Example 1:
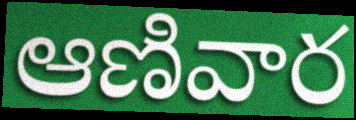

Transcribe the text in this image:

ఆణివార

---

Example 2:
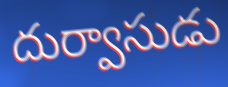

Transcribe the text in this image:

దుర్వాసుడు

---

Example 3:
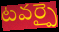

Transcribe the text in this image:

టవర్పై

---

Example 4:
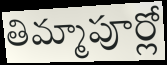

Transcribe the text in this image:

తిమ్మాపూర్లో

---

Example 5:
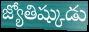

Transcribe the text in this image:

జ్యోతిష్కుడు